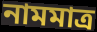
নামমাত্ৰ